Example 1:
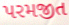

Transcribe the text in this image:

પરમજીત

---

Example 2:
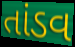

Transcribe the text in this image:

તાંડવ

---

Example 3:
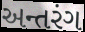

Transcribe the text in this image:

અન્તરંગ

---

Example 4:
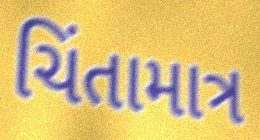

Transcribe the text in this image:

ચિંતામાત્ર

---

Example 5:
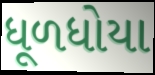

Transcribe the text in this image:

ધૂળધોયા